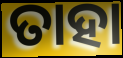
ତାହା